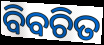
ବିବଚିତ